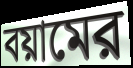
বয়ামের